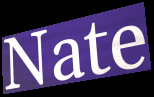
Nate